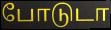
போடுடா